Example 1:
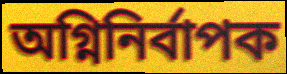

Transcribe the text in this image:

অগ্নিনিৰ্বাপক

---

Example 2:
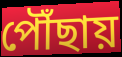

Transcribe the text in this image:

পৌঁছায়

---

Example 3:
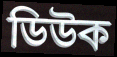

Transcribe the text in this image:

ডিউক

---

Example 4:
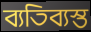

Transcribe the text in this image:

ব্যতিব্যস্ত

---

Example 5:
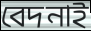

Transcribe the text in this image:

বেদনাই